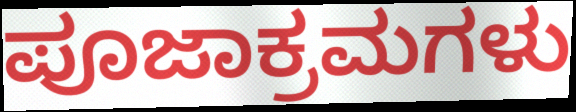
ಪೂಜಾಕ್ರಮಗಳು